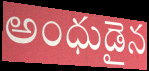
అంధుడైన